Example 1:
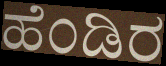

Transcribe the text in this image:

ಹೆಂಡಿರ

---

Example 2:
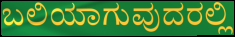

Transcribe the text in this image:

ಬಲಿಯಾಗುವುದರಲ್ಲಿ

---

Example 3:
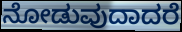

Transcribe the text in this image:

ನೋಡುವುದಾದರೆ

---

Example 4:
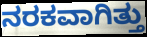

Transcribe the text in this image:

ನರಕವಾಗಿತ್ತು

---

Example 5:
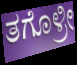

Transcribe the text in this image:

ತಗೊಳ್ರೀ